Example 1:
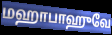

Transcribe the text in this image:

மஹாபாஹுவே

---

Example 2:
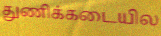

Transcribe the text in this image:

துணிக்கடையில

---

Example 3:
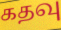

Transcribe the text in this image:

கதவு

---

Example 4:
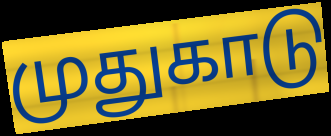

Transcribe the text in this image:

முதுகாடு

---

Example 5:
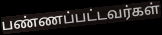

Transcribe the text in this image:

பண்ணப்பட்டவர்கள்